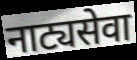
नाट्यसेवा